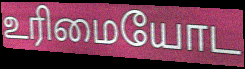
உரிமையோட